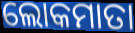
ଲୋକମାତା